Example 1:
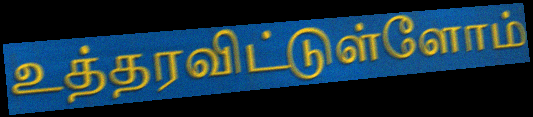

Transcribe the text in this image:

உத்தரவிட்டுள்ளோம்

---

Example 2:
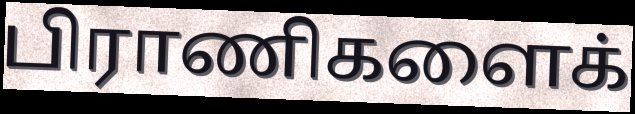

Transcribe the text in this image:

பிராணிகளைக்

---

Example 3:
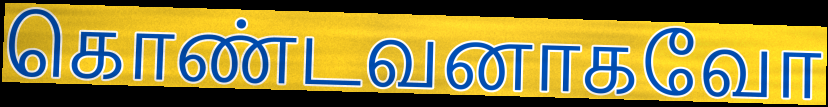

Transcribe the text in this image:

கொண்டவனாகவோ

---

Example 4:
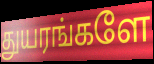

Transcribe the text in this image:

துயரங்களே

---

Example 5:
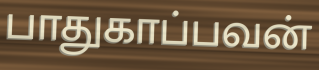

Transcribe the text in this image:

பாதுகாப்பவன்